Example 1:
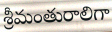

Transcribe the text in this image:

శ్రీమంతురాలిగా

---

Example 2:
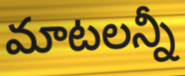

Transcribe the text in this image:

మాటలన్నీ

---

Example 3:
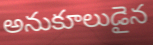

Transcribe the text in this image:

అనుకూలుడైన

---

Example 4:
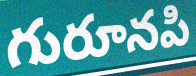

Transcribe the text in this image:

గురూనపి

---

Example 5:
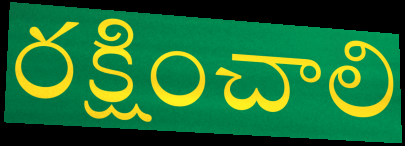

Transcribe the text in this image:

రక్షించాలి